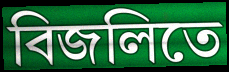
বিজলিতে